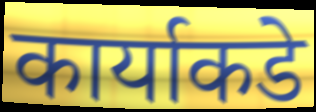
कार्याकडे